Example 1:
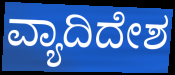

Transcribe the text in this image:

ವ್ಯಾದಿದೇಶ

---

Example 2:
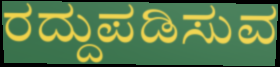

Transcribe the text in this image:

ರದ್ದುಪಡಿಸುವ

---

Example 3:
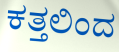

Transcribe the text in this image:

ಕತ್ತಲಿಂದ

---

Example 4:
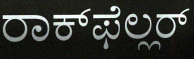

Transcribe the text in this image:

ರಾಕ್‌ಫೆಲ್ಲರ್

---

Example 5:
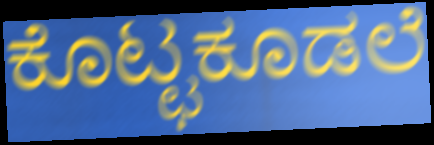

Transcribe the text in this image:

ಕೊಟ್ಟಕೂಡಲೆ